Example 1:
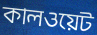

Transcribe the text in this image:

কালওয়েট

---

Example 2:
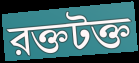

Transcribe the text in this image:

রক্তটক্ত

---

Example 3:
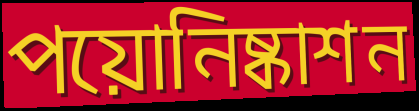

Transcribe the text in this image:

পয়োনিষ্কাশন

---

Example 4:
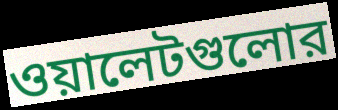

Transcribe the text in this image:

ওয়ালেটগুলোর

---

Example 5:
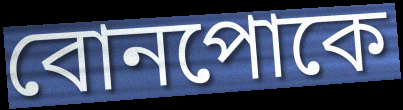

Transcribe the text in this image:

বোনপোকে